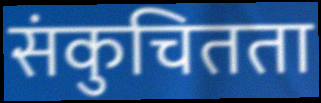
संकुचितता